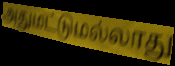
அதுமட்டுமல்லாது